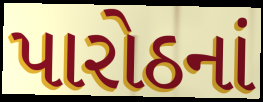
પારોઠનાં